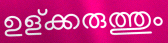
ഉള്ക്കരുത്തും